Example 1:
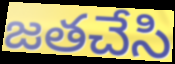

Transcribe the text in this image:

జతచేసి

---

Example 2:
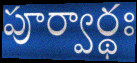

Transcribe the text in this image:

పూర్వార్థః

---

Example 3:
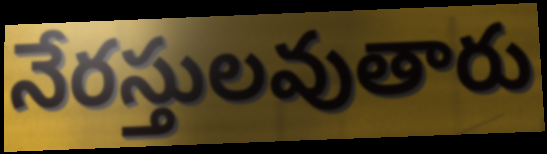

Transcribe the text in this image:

నేరస్తులవుతారు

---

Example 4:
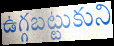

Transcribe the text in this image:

ఉగ్గబట్టుకుని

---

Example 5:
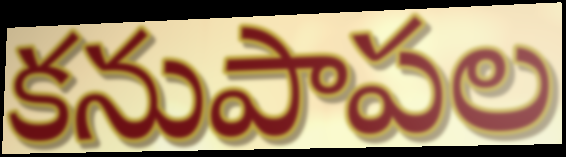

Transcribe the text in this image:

కనుపాపల